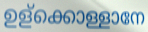
ഉള്ക്കൊള്ളാനേ